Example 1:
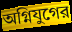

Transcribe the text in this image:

অগ্নিযুগের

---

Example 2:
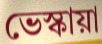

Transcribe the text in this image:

ভেস্কায়া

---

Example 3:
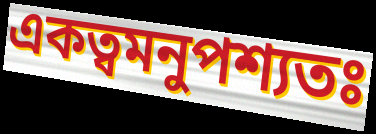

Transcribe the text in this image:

একত্বমনুপশ্যতঃ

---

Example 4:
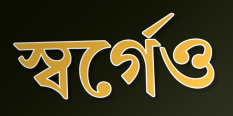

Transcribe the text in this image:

স্বর্গেও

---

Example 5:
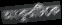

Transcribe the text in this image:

অংকুরটিকে